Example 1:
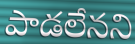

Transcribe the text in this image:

పాడలేనని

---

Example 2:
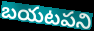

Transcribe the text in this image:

బయటపని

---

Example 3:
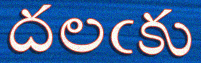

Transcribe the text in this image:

దలఁకు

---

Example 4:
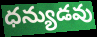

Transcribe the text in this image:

ధన్యుడవు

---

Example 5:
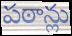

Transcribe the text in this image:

పఠాన్లు